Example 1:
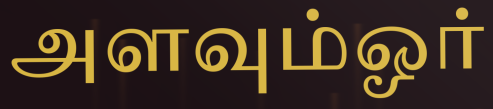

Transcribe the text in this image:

அளவும்ஓர்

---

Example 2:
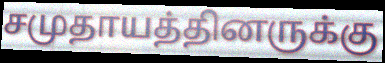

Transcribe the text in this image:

சமுதாயத்தினருக்கு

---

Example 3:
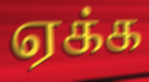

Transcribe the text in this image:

ஏக்க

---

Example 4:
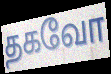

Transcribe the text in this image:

தகவோ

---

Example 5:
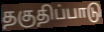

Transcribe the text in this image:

தகுதிப்பாடு